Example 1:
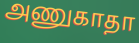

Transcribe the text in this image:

அணுகாதா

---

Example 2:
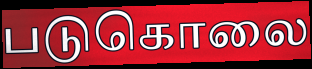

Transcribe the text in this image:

படுகொலை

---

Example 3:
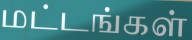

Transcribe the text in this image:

மட்டங்கள்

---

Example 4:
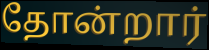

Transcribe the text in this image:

தோன்றார்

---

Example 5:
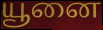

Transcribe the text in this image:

யூனை